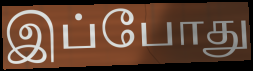
இப்போது